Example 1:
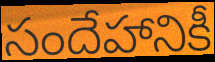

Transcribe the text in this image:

సందేహానికీ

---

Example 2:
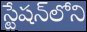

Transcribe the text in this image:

స్టేషన్‌లోని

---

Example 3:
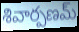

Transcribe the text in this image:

శివార్పణమ్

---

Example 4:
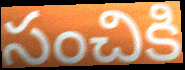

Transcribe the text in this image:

సంచికి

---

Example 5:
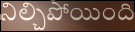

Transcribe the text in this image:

నిల్చిపోయింది